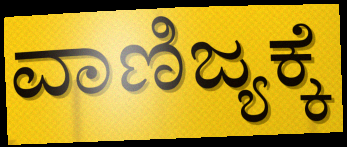
ವಾಣಿಜ್ಯಕ್ಕೆ